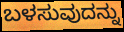
ಬಳಸುವುದನ್ನು